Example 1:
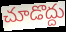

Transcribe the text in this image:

చూడొద్దు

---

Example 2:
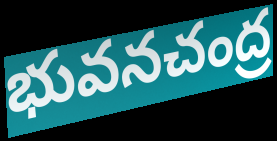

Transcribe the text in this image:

భువనచంద్ర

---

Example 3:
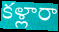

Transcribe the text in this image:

కళ్లారా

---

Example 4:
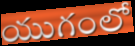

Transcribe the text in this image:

యుగంలో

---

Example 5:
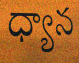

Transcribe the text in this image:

ధ్యాన